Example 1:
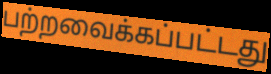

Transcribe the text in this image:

பற்றவைக்கப்பட்டது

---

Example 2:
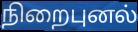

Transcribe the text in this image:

நிறைபுனல்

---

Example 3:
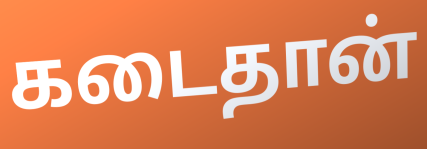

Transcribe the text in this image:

கடைதான்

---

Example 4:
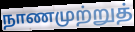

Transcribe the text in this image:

நாணமுற்றுத்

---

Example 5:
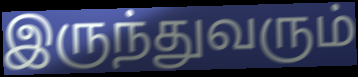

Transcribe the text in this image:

இருந்துவரும்